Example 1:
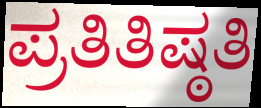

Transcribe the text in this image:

ಪ್ರತಿತಿಷ್ಠತಿ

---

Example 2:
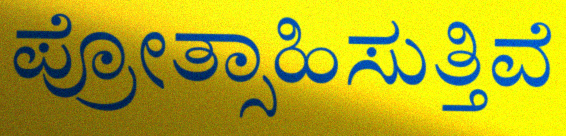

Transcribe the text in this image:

ಪ್ರೋತ್ಸಾಹಿಸುತ್ತಿವೆ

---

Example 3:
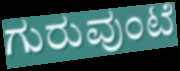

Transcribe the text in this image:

ಗುರುವುಂಟೆ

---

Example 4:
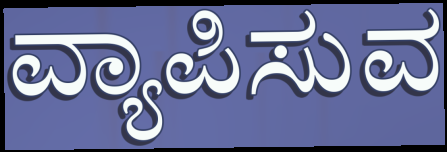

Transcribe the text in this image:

ವ್ಯಾಪಿಸುವ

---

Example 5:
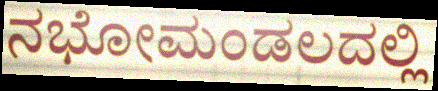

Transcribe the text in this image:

ನಭೋಮಂಡಲದಲ್ಲಿ